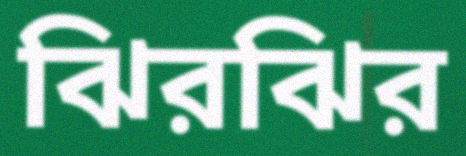
ঝিরঝির